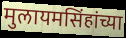
मुलायमसिंहांच्या